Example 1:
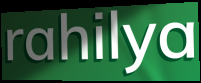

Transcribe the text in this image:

rahilya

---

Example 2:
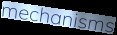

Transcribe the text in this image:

mechanisms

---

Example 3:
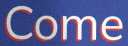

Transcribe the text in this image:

Come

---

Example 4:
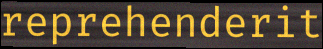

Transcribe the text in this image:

reprehenderit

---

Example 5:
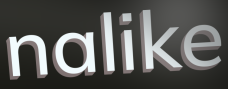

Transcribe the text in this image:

nalike